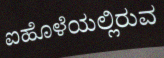
ಐಹೊಳೆಯಲ್ಲಿರುವ